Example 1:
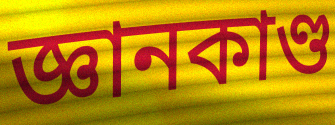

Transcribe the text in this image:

জ্ঞানকাণ্ড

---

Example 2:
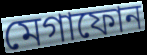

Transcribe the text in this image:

মেগাফোন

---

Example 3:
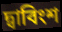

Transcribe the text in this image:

দ্বাবিংশ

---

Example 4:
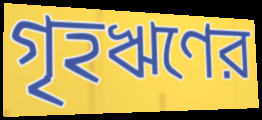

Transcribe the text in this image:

গৃহঋণের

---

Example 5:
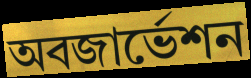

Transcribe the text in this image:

অবজার্ভেশন